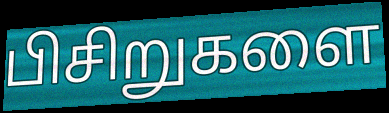
பிசிறுகளை